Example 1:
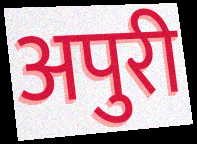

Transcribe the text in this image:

अपुरी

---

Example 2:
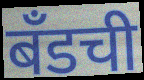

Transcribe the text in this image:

बँडची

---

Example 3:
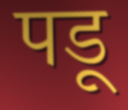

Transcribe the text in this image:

पडू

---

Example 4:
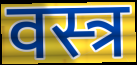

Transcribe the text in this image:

वस्त्र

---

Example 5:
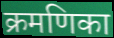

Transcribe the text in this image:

क्रमणिका